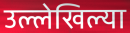
उल्लेखिल्या